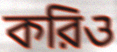
করিও